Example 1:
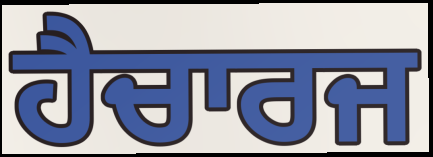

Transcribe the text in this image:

ਹੈਚਾਰਜ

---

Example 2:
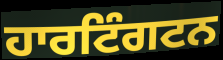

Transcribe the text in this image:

ਹਾਰਟਿੰਗਟਨ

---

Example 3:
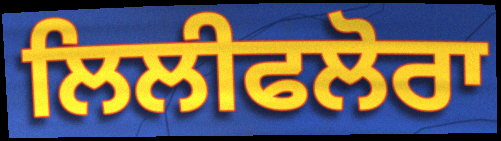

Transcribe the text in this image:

ਲਿਲੀਫਲੋਰਾ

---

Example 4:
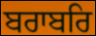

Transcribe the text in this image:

ਬਰਾਬਰਿ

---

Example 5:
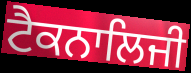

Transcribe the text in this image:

ਟੈਕਨਾਲਿਜੀ